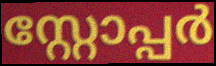
സ്റ്റോപ്പർ